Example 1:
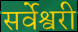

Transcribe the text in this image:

सर्वेश्वरी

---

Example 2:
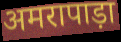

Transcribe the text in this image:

अमरापाड़ा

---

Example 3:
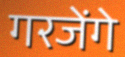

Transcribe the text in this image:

गरजेंगे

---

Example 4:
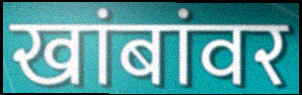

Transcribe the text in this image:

खांबांवर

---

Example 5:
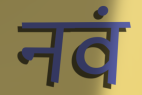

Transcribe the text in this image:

नवं